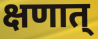
क्षणात्